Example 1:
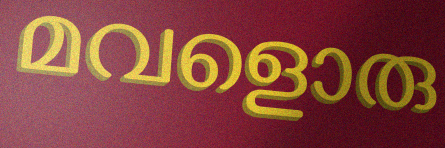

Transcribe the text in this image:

മവളൊരു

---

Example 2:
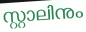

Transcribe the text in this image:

സ്റ്റാലിനും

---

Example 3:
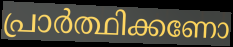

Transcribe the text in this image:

പ്രാർത്ഥിക്കണോ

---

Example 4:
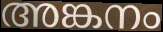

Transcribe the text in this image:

അങ്കനം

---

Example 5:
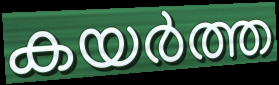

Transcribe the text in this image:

കയർത്ത